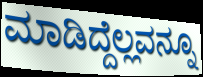
ಮಾಡಿದ್ದೆಲ್ಲವನ್ನೂ